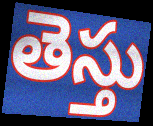
తెస్తు